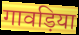
गावड़िया